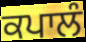
ਕਪਾਲੰ